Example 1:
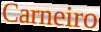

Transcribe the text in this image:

Carneiro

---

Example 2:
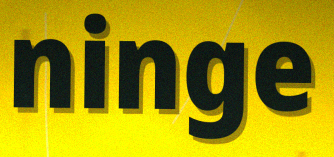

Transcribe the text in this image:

ninge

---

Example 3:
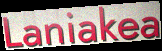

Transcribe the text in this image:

Laniakea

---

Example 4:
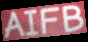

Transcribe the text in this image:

AIFB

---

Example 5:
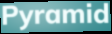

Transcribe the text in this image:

Pyramid